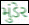
મુંડેર